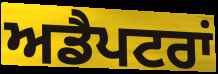
ਅਡੈਪਟਰਾਂ